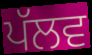
ਪੱਲਵ